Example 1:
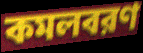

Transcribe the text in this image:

কমলবরণ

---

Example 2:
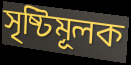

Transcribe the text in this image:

সৃষ্টিমূলক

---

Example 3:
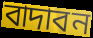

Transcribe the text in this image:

বাদাবন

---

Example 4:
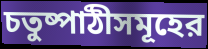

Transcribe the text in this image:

চতুষ্পাঠীসমূহের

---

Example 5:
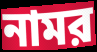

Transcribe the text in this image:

নামর